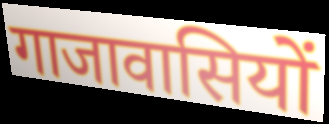
गाजावासियों